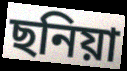
ছনিয়া